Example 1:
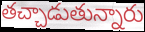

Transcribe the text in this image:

తచ్చాడుతున్నారు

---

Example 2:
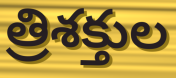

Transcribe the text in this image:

త్రిశక్తుల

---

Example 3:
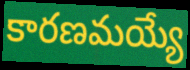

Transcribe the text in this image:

కారణమయ్యే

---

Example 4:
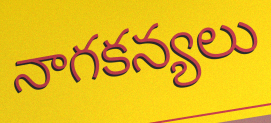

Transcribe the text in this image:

నాగకన్యలు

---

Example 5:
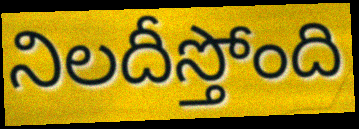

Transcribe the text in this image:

నిలదీస్తోంది